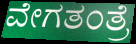
ವೇಗತಂತ್ರೆ